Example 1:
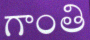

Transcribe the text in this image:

గాంతి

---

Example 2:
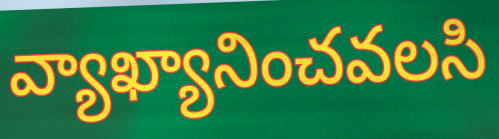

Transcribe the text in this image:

వ్యాఖ్యానించవలసి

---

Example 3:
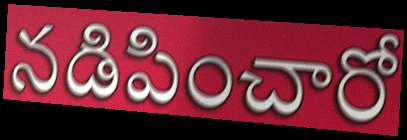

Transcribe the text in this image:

నడిపించారో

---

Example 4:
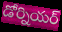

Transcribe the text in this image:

డోర్నియర్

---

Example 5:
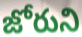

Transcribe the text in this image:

జోరుని